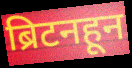
ब्रिटनहून